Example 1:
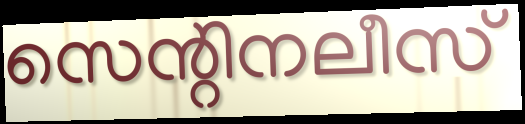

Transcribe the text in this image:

സെന്റിനലീസ്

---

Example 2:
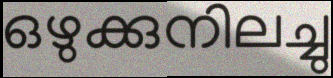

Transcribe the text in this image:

ഒഴുക്കുനിലച്ചു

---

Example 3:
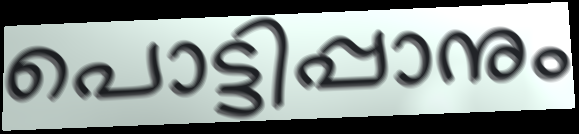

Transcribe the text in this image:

പൊട്ടിപ്പാനും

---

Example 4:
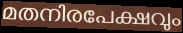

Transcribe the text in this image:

മതനിരപേക്ഷവും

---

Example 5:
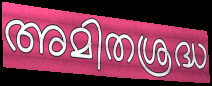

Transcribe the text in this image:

അമിതശ്രദ്ധ